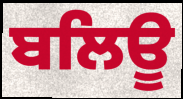
ਬਲਿਊ